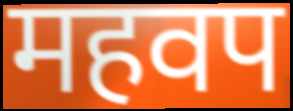
महवप